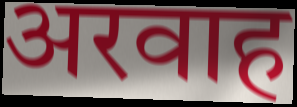
अरवाह